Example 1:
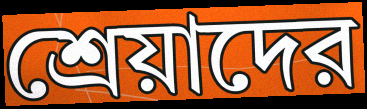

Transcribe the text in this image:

শ্রেয়াদের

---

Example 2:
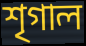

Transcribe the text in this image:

শৃগাল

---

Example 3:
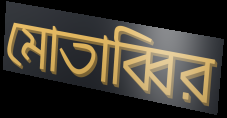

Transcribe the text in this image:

মোতাব্বির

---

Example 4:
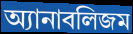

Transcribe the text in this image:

অ্যানাবলিজম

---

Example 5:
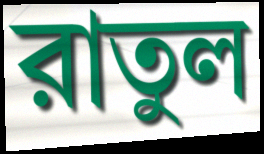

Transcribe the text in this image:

রাতুল